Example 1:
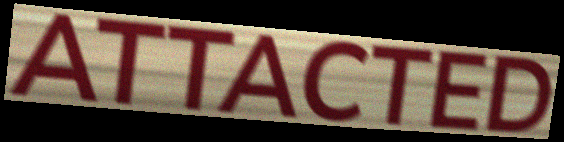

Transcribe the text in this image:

ATTACTED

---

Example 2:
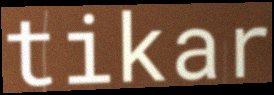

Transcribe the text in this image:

tikar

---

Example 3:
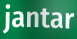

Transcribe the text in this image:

jantar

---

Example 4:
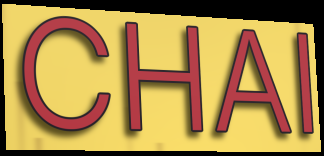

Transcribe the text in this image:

CHAI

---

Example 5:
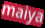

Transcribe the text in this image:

maiya